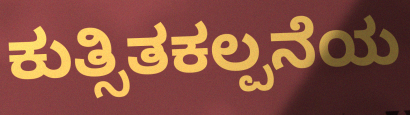
ಕುತ್ಸಿತಕಲ್ಪನೆಯ